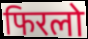
फिरलो